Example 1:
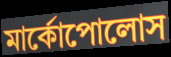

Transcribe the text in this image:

মার্কোপোলোস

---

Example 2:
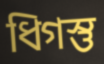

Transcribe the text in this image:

ধিগস্তু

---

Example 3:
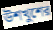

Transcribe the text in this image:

উশখুশের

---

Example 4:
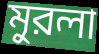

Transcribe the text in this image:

মুরলা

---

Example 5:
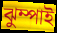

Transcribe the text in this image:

ঝুম্পাই